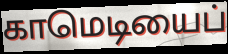
காமெடியைப்